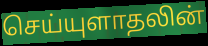
செய்யுளாதலின்